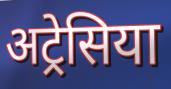
अट्रेसिया